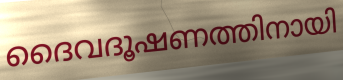
ദൈവദൂഷണത്തിനായി